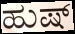
ಹುಷ್